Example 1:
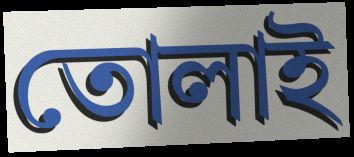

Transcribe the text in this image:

তোলাই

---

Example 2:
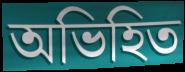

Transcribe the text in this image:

অভিহিত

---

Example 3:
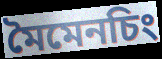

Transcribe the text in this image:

মৈমেনচিং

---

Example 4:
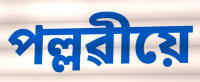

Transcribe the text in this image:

পল্লৱীয়ে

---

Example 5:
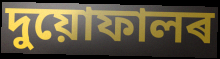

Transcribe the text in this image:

দুয়োফালৰ